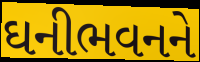
ઘનીભવનને